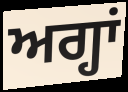
ਅਗ੍ਹਾਂ